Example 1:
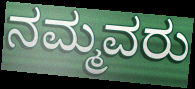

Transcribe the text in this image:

ನಮ್ಮವರು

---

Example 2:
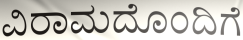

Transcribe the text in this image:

ವಿರಾಮದೊಂದಿಗೆ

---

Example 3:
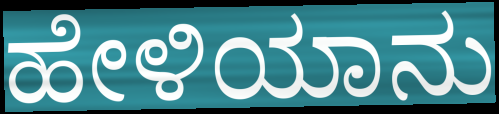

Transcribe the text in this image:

ಹೇಳಿಯಾನು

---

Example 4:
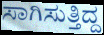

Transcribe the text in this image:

ಸಾಗಿಸುತ್ತಿದ್ದ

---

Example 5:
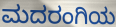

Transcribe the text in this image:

ಮದರಂಗಿಯ